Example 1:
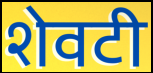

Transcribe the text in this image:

शेवटी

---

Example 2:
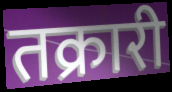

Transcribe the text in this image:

तक्रारी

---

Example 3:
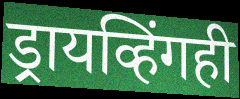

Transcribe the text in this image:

ड्रायव्हिंगही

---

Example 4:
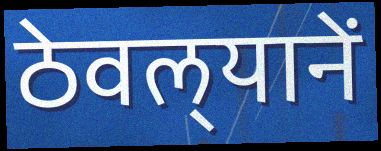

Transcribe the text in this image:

ठेवल्यानें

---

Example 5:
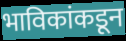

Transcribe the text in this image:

भाविकांकडून